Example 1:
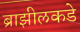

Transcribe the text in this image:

ब्राझीलकडे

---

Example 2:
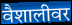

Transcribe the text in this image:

वैशालीवर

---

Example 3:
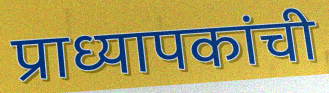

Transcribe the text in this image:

प्राध्यापकांची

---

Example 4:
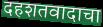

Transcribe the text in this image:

दहशतवादाचा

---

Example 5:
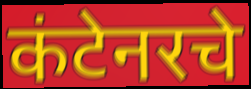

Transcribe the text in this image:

कंटेनरचे